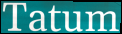
Tatum